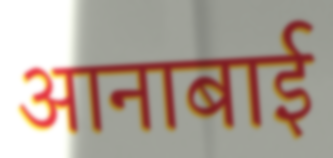
आनाबाई